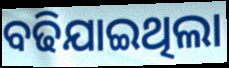
ବଢିଯାଇଥିଲା